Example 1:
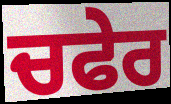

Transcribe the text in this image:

ਚਫੇਰ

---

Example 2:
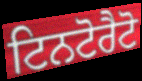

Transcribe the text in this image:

ਟਿਨਟੋਰੈਟੋ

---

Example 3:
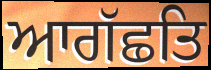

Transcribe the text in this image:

ਆਗੱਛਤਿ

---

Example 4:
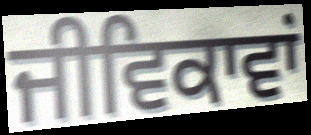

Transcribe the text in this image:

ਜੀਵਿਕਾਵਾਂ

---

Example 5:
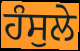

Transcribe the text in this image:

ਹੰਸੁਲੇ